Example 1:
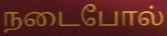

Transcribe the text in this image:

நடைபோல்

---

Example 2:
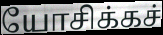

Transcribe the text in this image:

யோசிக்கச்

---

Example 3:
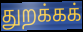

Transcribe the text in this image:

துறக்கக்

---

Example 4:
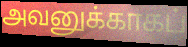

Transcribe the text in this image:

அவனுக்காகப்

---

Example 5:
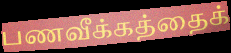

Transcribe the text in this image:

பணவீக்கத்தைக்